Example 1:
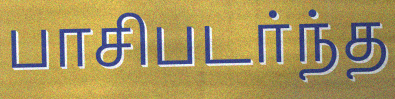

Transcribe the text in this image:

பாசிபடர்ந்த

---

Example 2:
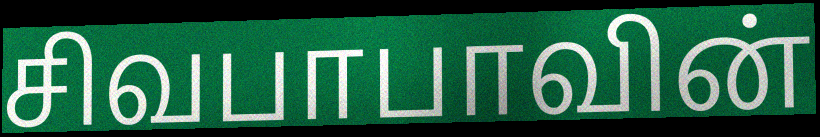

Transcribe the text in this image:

சிவபாபாவின்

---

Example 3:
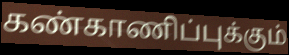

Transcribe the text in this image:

கண்காணிப்புக்கும்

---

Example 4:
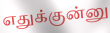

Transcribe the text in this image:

எதுக்குன்னு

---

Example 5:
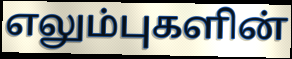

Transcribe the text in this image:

எலும்புகளின்